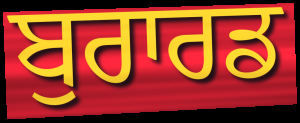
ਬੁਰਾਰਡ